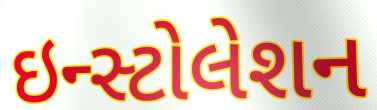
ઇન્સ્ટોલેશન